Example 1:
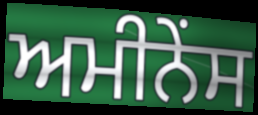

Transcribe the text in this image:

ਅਮੀਨੇਂਸ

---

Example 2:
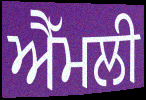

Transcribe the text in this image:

ਐੱਮਲੀ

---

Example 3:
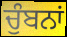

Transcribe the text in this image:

ਚੁੰਬਨਾਂ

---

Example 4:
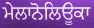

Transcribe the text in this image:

ਮੇਲਾਨੋਲਿਊਕਾ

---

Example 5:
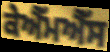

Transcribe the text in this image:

ਕੇਐੱਮਐੱਸ